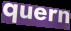
quern